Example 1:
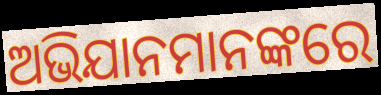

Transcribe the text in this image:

ଅଭିଯାନମାନଙ୍କରେ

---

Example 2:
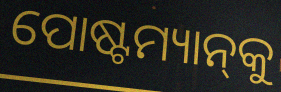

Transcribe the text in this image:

ପୋଷ୍ଟମ୍ୟାନ୍‌କୁ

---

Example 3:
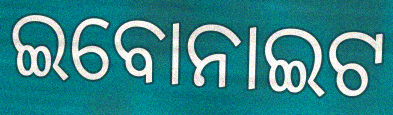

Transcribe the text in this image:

ଇବୋନାଇଟ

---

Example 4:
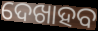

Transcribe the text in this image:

ଦେଖାହବ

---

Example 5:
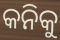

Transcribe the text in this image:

କନିକୁ